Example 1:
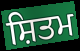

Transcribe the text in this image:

ਸ਼ਿਤਮ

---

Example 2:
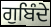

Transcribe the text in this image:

ਗੁਬਿੰਦੇ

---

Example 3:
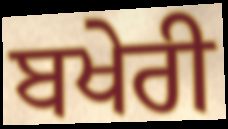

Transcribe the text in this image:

ਬਖੇਰੀ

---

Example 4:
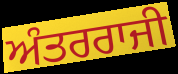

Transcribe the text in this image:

ਅੰਤਰਰਾਜੀ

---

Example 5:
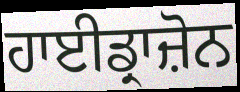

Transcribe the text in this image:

ਹਾਈਡ੍ਰਾਜ਼ੋਨ